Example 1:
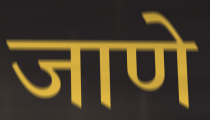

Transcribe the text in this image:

जाणे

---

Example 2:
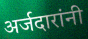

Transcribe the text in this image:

अर्जदारांनी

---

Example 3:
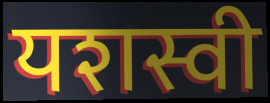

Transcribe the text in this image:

यशस्‍वी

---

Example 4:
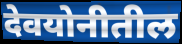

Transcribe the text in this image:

देवयोनीतील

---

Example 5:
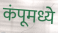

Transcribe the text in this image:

कंपूमध्ये